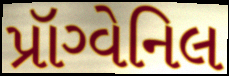
પ્રૉગ્વેનિલ